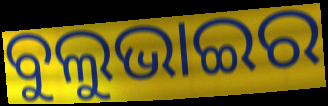
ବୁଲୁଭାଇର